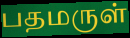
பதமருள்